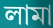
লামা